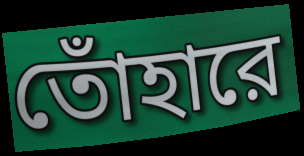
তোঁহারে